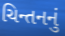
ચિન્તનનું